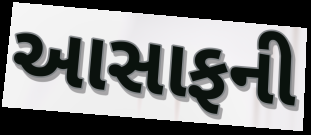
આસાફની